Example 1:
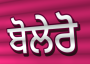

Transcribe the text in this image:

ਬੋਲੇਰੋ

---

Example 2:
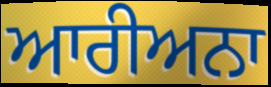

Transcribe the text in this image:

ਆਰੀਅਨਾ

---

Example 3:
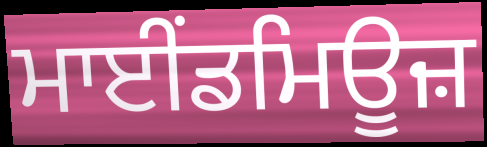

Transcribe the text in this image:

ਮਾਈਂਡਮਿਊਜ਼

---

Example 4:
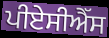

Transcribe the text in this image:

ਪੀਏਸੀਐੱਸ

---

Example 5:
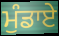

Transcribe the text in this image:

ਮੁੰਡਾਏ